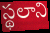
స్థలాని